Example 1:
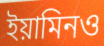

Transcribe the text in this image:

ইয়ামিনও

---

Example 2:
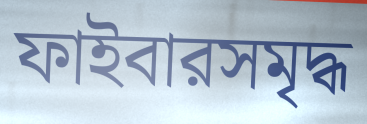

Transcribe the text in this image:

ফাইবারসমৃদ্ধ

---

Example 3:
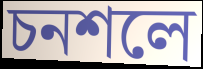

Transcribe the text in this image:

চনশলে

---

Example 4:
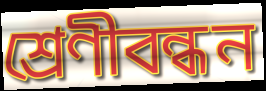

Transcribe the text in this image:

শ্রেণীবন্ধন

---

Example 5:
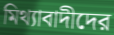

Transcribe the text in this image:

মিথ্যাবাদীদের